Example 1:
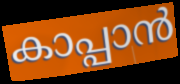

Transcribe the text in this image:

കാപ്പാൻ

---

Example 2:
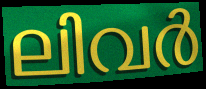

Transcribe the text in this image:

ലിവർ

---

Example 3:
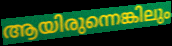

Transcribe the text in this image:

ആയിരുന്നെങ്കിലും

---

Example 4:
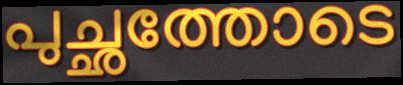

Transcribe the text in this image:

പുച്ഛത്തോടെ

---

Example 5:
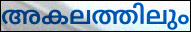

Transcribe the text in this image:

അകലത്തിലും